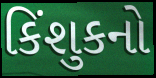
કિંશુકનો